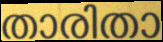
താരിതാ